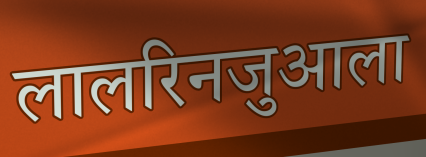
लालरिनजुआला